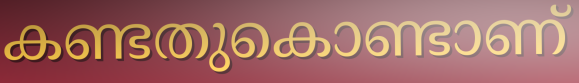
കണ്ടതുകൊണ്ടാണ്